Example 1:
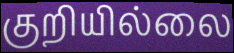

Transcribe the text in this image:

குறியில்லை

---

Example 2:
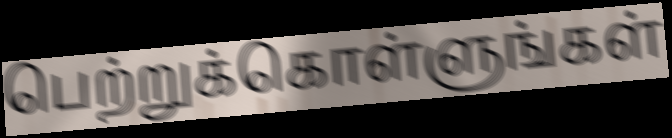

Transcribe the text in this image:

பெற்றுக்கொள்ளுங்கள்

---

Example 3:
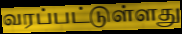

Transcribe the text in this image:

வரப்பட்டுள்ளது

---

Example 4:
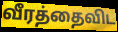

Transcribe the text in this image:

வீரத்தைவிட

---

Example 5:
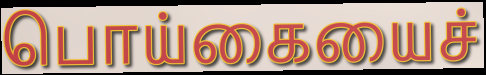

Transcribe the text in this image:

பொய்கையைச்